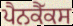
ਪੈਨਕੈੱਕਸ